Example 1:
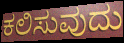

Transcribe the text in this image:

ಕಲಿಸುವುದು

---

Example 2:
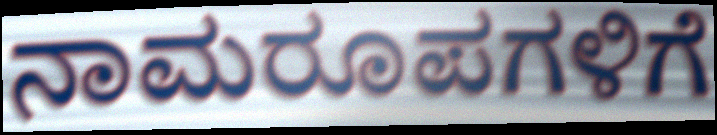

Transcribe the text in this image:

ನಾಮರೂಪಗಳಿಗೆ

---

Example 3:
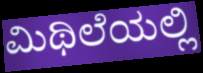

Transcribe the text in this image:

ಮಿಥಿಲೆಯಲ್ಲಿ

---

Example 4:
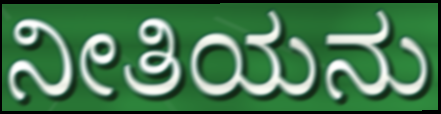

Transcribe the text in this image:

ನೀತಿಯನು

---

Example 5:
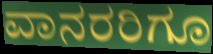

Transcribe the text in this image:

ವಾನರರಿಗೂ